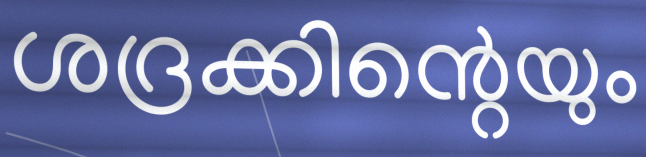
ശദ്രക്കിന്റെയും